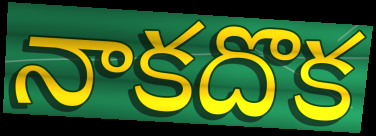
నాకదొక